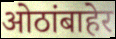
ओठांबाहेर